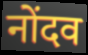
नोंदव